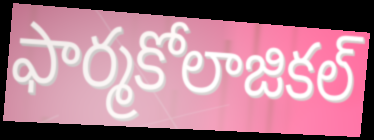
ఫార్మకోలాజికల్